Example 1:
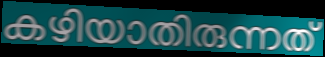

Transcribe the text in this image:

കഴിയാതിരുന്നത്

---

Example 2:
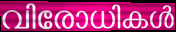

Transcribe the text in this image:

വിരോധികൾ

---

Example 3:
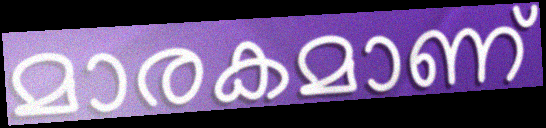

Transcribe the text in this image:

മാരകമാണ്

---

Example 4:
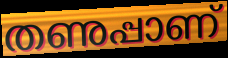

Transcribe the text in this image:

തണുപ്പാണ്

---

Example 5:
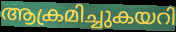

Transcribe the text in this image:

ആക്രമിച്ചുകയറി